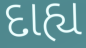
દાહ્ય